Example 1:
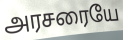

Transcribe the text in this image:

அரசரையே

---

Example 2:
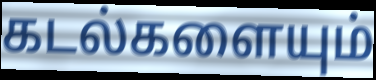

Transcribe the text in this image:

கடல்களையும்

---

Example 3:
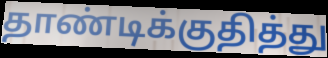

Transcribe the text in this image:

தாண்டிக்குதித்து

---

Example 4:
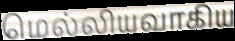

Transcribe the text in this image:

மெல்லியவாகிய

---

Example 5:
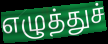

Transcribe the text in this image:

எழுத்துச்